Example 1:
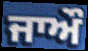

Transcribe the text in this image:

ਜਾਔ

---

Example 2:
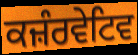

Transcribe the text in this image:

ਕਜ਼ੰਰਵੇਟਿਵ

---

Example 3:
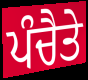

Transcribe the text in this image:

ਪੰਚੈਤੇ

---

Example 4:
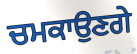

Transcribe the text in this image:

ਚਮਕਾਉਣਗੇ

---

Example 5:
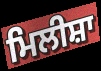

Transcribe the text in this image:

ਮਿਲੀਸ਼ਾ